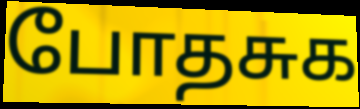
போதசுக